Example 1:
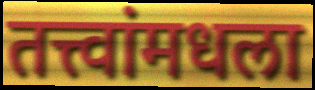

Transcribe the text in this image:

तत्त्वांमधला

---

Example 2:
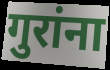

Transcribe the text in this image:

गुरांना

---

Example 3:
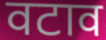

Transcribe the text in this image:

वटाव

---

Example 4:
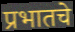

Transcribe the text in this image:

प्रभातचे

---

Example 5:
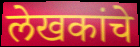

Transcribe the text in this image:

लेखकांचे